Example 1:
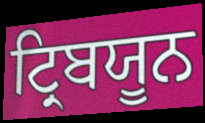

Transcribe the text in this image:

ਟ੍ਰਿਬਯੂਨ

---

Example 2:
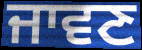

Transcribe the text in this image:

ਜਾਵਣ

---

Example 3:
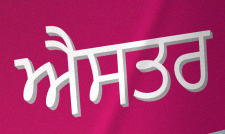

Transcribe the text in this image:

ਐਸਤਰ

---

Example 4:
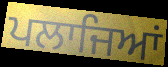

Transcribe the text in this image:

ਪਲਾਜਿਆਂ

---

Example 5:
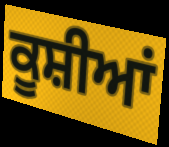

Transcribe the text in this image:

ਕੂਸ਼ੀਆਂ